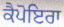
ਕੈਪੋਇਰਾ